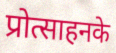
प्रोत्साहनके